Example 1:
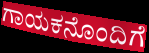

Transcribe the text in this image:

ಗಾಯಕನೊಂದಿಗೆ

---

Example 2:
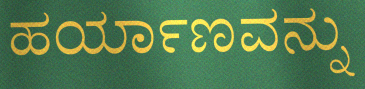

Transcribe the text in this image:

ಹರ್ಯಾಣವನ್ನು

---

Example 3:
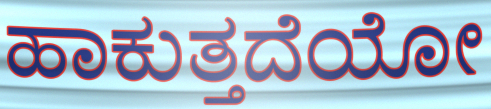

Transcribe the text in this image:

ಹಾಕುತ್ತದೆಯೋ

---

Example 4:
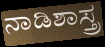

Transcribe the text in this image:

ನಾಡಿಶಾಸ್ತ್ರ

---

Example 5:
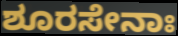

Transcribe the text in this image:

ಶೂರಸೇನಾಃ